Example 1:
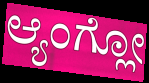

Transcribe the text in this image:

ಆ್ಯಂಗ್ಲೋ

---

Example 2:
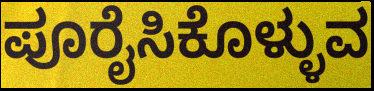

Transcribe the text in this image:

ಪೂರೈಸಿಕೊಳ್ಳುವ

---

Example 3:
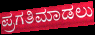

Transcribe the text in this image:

ಪ್ರಗತಿಮಾಡಲು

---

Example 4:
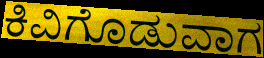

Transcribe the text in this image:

ಕಿವಿಗೊಡುವಾಗ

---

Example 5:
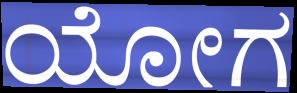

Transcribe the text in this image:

ಯೋಗ